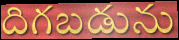
దిగబడును